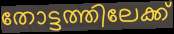
തോട്ടത്തിലേക്ക്